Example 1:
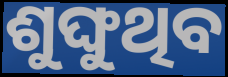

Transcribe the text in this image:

ଶୁଙ୍ଘୁଥିବ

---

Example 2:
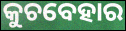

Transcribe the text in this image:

କୁଚବେହାର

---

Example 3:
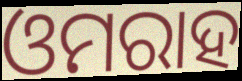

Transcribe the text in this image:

ଓମରାହ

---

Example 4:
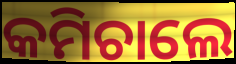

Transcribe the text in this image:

କମିଚାଲେ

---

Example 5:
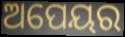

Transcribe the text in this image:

ଅପେୟର